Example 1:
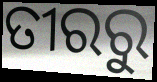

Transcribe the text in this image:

ତୀରରୁ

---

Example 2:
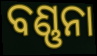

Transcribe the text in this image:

ବଣ୍ଣନା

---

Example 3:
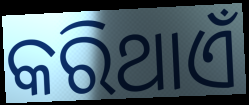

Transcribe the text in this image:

କରିଥାଏଁ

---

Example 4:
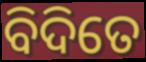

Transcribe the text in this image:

ବିଦିତେ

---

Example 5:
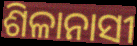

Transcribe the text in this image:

ଶିଳାନାସୀ